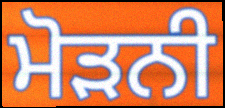
ਮੋੜਨੀ